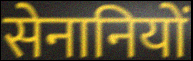
सेनानियों